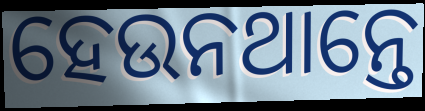
ହେଉନଥାନ୍ତେ